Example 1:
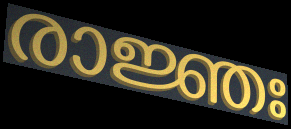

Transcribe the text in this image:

രാജ്ഞഃ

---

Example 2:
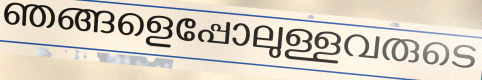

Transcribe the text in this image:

ഞങ്ങളെപ്പോലുള്ളവരുടെ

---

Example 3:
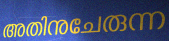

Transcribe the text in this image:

അതിനുചേരുന്ന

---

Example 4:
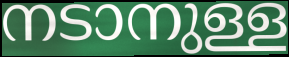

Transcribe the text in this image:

നടാനുള്ള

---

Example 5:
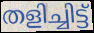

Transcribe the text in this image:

തളിച്ചിട്ട്